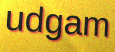
udgam